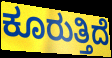
ಕೂರುತ್ತಿದೆ